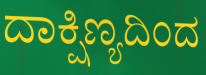
ದಾಕ್ಷಿಣ್ಯದಿಂದ